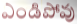
ఎండిపోవు